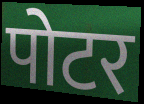
पोटर